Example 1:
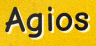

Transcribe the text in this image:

Agios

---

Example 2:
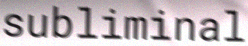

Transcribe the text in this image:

subliminal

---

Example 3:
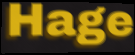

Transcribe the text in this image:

Hage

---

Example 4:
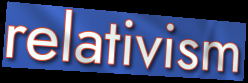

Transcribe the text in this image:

relativism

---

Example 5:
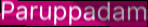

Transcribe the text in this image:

Paruppadam